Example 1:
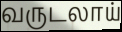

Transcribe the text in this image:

வருடலாய்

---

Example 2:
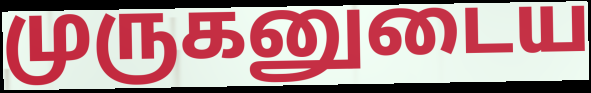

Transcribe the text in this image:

முருகனுடைய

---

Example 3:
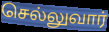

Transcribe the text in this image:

செல்லுவார்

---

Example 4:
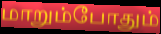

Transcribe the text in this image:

மாறும்போதும்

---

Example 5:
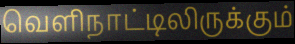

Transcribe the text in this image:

வெளிநாட்டிலிருக்கும்